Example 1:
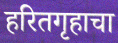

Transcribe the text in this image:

हरितगृहाचा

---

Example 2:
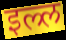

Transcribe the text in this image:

इल्ल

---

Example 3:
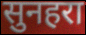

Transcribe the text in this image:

सुनहरा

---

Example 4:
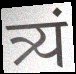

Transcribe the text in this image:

त्र्यं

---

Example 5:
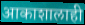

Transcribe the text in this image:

आकाशालाही